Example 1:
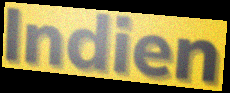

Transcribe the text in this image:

Indien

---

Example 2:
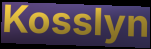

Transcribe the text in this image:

Kosslyn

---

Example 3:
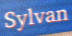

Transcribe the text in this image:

Sylvan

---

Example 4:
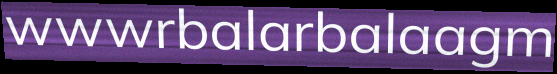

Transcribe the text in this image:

wwwrbalarbalaagm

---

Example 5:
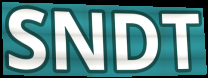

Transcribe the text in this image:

SNDT